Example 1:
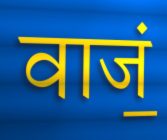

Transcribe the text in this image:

वाजं॒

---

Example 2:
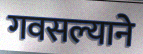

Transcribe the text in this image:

गवसल्याने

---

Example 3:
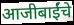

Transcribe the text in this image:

आजीबाईंचे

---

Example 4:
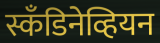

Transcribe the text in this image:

स्कँडिनेव्हियन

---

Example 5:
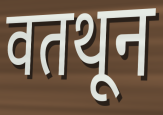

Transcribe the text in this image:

वतथून